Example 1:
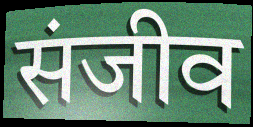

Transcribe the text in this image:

संजीव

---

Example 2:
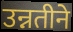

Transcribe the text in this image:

उन्नतीने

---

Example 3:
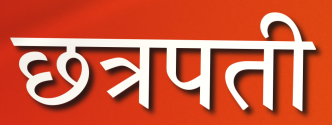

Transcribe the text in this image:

छत्रपती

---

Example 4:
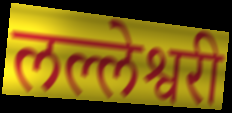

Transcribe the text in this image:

लल्लेश्वरी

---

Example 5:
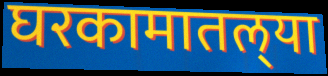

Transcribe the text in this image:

घरकामातल्या